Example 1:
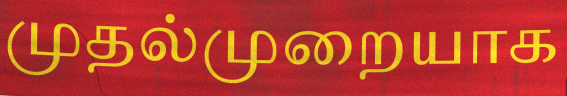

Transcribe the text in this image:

முதல்முறையாக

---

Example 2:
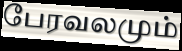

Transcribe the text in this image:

பேரவலமும்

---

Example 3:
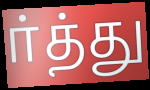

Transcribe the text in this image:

ர்த்து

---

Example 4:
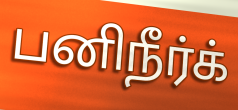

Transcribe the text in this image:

பனிநீர்க்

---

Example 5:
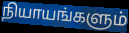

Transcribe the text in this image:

நியாயங்களும்